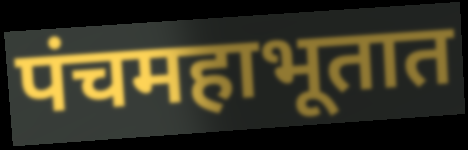
पंचमहाभूतात